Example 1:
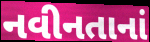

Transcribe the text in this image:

નવીનતાનાં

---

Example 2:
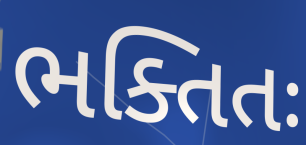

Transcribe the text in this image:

ભક્તિતઃ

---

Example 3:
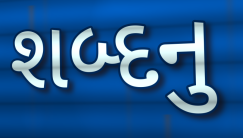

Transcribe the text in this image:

શબ્દનુ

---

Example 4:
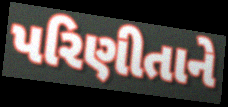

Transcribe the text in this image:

પરિણીતાને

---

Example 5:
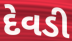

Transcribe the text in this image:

દેવડી